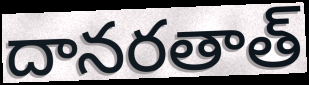
దానరతాత్